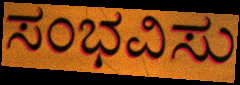
ಸಂಭವಿಸು